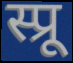
स्प्रू